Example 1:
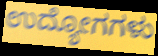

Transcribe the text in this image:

ಉದ್ಯೋಗಗಳು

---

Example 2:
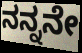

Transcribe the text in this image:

ನನ್ನನೇ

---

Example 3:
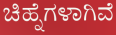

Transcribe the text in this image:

ಚಿಹ್ನೆಗಳಾಗಿವೆ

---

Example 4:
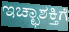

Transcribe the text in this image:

ಇಚ್ಛಾಶಕ್ತಿಗೆ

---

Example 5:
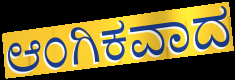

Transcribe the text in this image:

ಆಂಗಿಕವಾದ